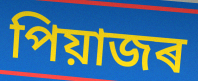
পিয়াজৰ